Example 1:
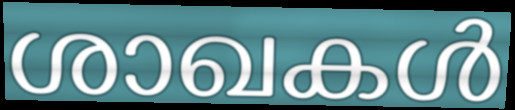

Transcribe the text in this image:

ശാഖകൾ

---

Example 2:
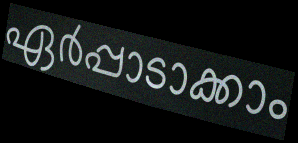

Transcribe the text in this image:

ഏർപ്പാടാക്കാം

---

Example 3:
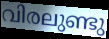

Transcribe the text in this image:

വിരലുണ്ടു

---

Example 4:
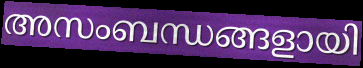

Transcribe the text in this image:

അസംബന്ധങ്ങളായി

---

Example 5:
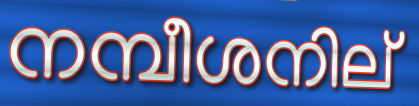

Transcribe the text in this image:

നമ്പീശനില്